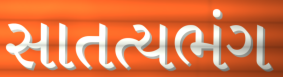
સાતત્યભંગ